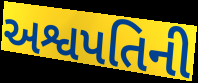
અશ્વપતિની